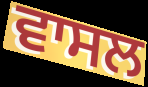
ਵਾਸਲ